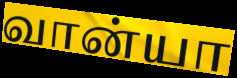
வான்யா